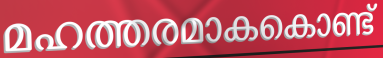
മഹത്തരമാകകൊണ്ട്